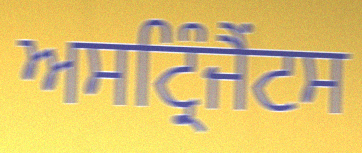
ਅਸਟ੍ਰਿੰਜੈਂਟਸ